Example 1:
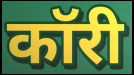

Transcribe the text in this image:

कॉरी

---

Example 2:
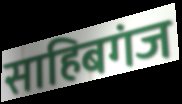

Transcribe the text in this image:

साहिबगंज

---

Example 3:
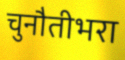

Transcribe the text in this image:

चुनौतीभरा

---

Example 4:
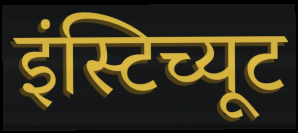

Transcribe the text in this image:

इंस्टिच्यूट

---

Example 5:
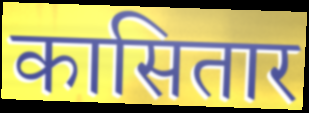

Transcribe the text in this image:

कासितार